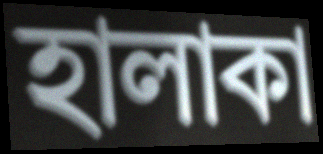
হালাকা